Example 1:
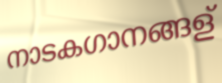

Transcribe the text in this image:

നാടകഗാനങ്ങള്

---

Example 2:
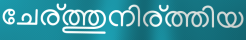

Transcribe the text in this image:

ചേര്ത്തുനിര്ത്തിയ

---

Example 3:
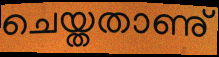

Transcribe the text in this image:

ചെയ്തതാണു്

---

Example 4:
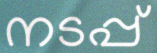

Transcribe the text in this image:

നടപ്പ്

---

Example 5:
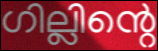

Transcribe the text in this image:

ഗില്ലിന്റെ